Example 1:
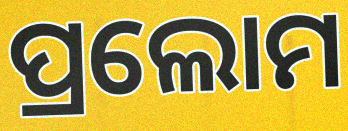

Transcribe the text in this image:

ପ୍ରଲୋମ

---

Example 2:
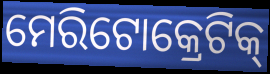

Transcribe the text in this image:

ମେରିଟୋକ୍ରେଟିକ୍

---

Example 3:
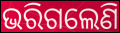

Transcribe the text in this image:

ଭରିଗଲେଣି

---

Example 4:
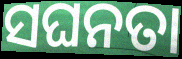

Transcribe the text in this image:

ସଘନତା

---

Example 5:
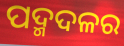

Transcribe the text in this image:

ପଦ୍ମଦଳର